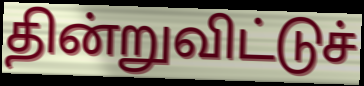
தின்றுவிட்டுச்